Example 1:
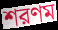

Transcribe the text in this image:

শরণম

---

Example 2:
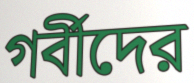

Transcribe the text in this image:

গর্বীদের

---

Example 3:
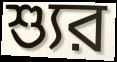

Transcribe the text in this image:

শ্যুর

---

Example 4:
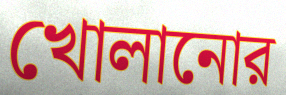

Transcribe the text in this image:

খোলানোর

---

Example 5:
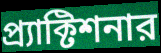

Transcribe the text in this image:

প্র্যাক্টিশনার